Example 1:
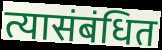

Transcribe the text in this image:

त्यासंबंधित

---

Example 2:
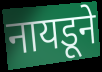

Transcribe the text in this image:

नायडूने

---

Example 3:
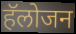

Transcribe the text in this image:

हॅलोजन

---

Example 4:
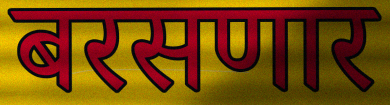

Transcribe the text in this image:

बरसणार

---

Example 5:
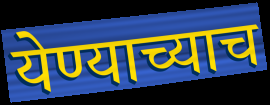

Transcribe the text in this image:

येण्याच्याच